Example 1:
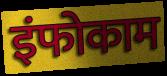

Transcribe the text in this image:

इंफोकाम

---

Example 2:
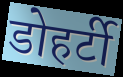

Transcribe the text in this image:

डोहर्टी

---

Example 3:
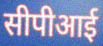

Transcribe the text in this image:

सीपीआई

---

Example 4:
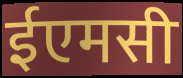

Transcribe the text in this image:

ईएमसी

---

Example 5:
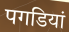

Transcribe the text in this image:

पगडियां